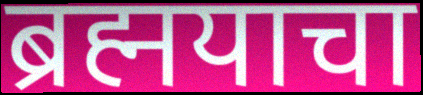
ब्रह्मयाचा